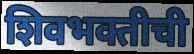
शिवभक्तीची